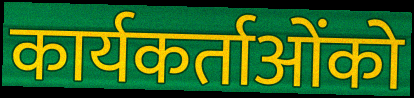
कार्यकर्ताओंको